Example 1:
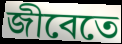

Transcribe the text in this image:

জীবেতে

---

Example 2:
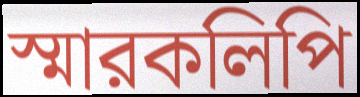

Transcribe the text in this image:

স্মারকলিপি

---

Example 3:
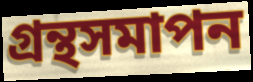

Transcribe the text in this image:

গ্রন্থসমাপন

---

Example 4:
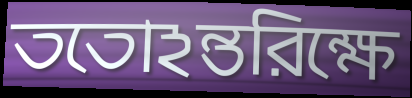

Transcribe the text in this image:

ততোঽন্তরিক্ষে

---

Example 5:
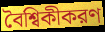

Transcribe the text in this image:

বৈশ্বিকীকরণ